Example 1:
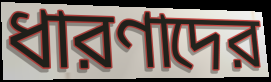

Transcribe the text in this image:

ধারণাদের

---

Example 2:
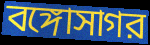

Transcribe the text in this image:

বঙ্গোসাগর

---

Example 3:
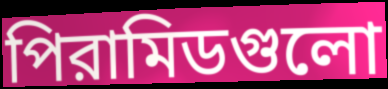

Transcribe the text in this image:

পিরামিডগুলো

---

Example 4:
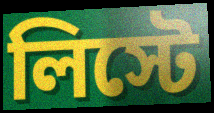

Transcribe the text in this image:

লিস্টে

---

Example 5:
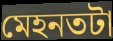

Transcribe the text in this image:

মেহনতটা